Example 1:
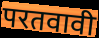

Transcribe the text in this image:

परतवावी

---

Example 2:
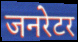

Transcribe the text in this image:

जनरेटर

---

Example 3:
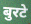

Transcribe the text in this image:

बुरटे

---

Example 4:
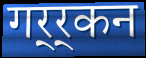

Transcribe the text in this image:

गर्र्कन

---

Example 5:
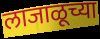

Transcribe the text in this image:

लाजाळूच्या